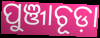
ପୁଞ୍ଜାଚୂଡ଼ା